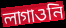
লাগাওনি